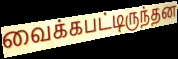
வைக்கபட்டிருந்தன